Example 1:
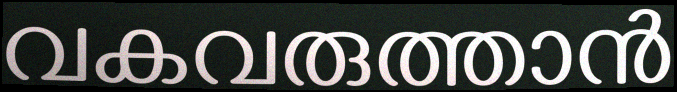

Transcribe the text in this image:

വകവരുത്താൻ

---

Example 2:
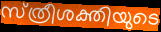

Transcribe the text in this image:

സ്‌ത്രീശക്തിയുടെ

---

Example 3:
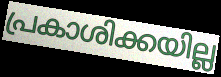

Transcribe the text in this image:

പ്രകാശിക്കയില്ല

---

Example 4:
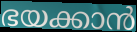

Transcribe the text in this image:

ഭയക്കാൻ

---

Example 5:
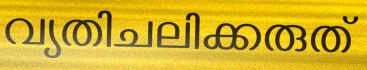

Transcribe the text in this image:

വ്യതിചലിക്കരുത്